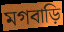
মগবাড়ি